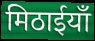
मिठाईयाँ